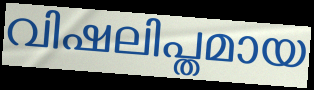
വിഷലിപ്തമായ